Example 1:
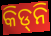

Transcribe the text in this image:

କିଡ୍‌ନି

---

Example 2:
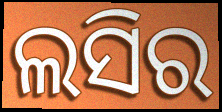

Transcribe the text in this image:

ଲସିର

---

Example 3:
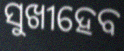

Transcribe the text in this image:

ସୁଖୀହେବ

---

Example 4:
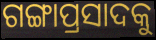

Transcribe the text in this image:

ଗଙ୍ଗାପ୍ରସାଦକୁ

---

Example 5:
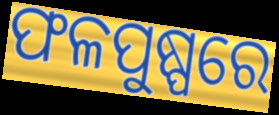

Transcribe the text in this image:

ଫଳପୁଷ୍ପରେ